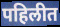
पहिलीत